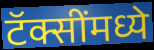
टॅक्सींमध्ये